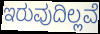
ಇರುವುದಿಲ್ಲವೆ